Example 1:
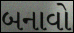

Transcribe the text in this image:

બનાવો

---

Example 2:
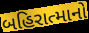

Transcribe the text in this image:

બહિરાત્માનો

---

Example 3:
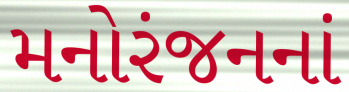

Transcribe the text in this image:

મનોરંજનનાં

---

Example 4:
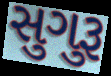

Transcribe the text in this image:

સુગુરૂ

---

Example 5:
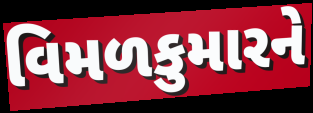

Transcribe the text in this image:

વિમળકુમારને